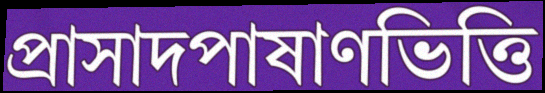
প্রাসাদপাষাণভিত্তি